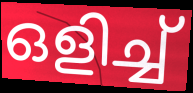
ഒളിച്ച്